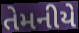
તેમનીયે